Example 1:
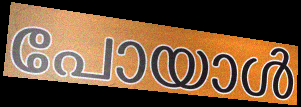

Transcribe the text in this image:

പോയാൾ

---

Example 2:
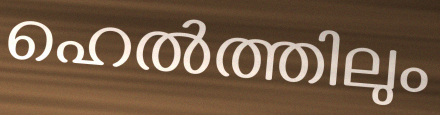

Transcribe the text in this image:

ഹെൽത്തിലും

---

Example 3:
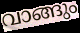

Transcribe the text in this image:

വാങ്ങും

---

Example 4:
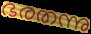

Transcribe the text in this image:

ഭരതന്നു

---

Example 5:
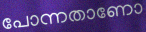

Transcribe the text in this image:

പോന്നതാണോ